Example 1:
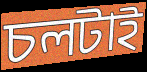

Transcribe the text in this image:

চলটাই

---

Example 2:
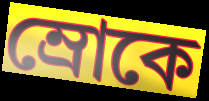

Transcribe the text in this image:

ম্রোকে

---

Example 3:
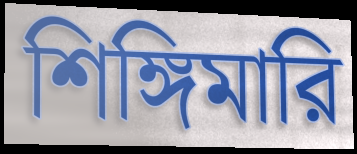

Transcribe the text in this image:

শিঙ্গিমারি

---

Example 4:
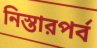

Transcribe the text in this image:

নিস্তারপর্ব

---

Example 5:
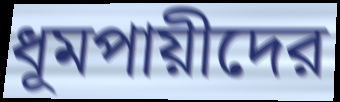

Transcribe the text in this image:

ধূমপায়ীদের